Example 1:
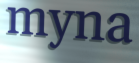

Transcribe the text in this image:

myna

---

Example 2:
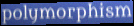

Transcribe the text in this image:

polymorphism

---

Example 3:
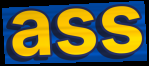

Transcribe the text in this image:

ass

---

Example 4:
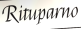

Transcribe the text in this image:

Rituparno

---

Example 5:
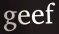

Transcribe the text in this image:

geef